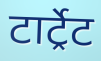
टार्ट्रेट